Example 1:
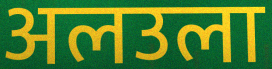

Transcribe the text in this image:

अलउला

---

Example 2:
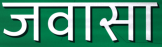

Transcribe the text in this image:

जवासा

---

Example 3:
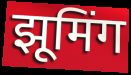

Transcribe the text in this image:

झूमिंग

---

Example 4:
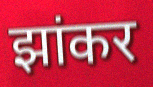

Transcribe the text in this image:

झांकर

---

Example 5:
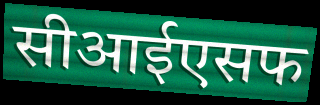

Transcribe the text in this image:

सीआईएसफ